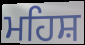
ਮਹਿਸ਼